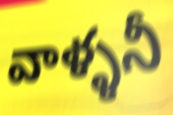
వాళ్ళనీ